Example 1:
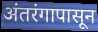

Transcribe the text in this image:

अंतरंगापासून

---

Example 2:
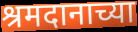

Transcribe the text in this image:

श्रमदानाच्या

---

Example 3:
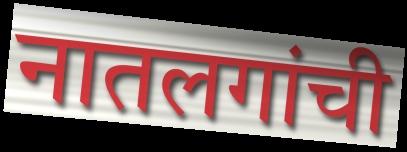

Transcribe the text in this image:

नातलगांची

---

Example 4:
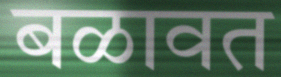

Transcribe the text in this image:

बळावत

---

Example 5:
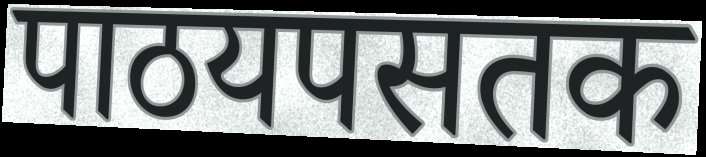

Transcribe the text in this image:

पाठयपसतक